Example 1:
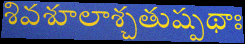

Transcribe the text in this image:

శివశూలాశ్చతుష్పథాః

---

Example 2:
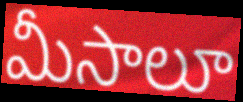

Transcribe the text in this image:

మీసాలూ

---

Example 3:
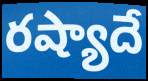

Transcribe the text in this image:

రష్యాదే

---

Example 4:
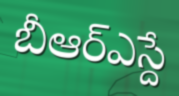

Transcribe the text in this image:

బీఆర్ఎస్దే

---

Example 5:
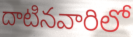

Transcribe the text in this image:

దాటినవారిలో